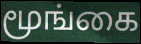
மூங்கை